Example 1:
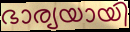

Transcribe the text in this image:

ഭാര്യയായി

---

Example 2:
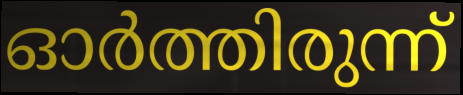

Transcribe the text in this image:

ഓർത്തിരുന്ന്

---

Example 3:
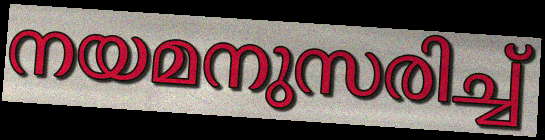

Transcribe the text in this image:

നയമനുസരിച്ച്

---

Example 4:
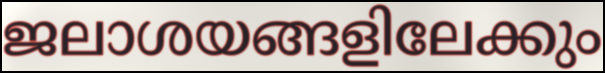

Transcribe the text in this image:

ജലാശയങ്ങളിലേക്കും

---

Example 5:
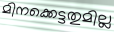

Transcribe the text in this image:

മിനക്കെട്ടതുമില്ല